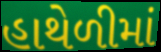
હાથેળીમાં